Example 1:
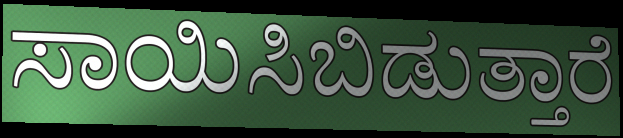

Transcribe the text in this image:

ಸಾಯಿಸಿಬಿಡುತ್ತಾರೆ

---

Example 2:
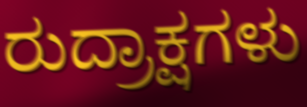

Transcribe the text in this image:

ರುದ್ರಾಕ್ಷಗಳು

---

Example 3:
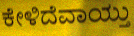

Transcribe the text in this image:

ಕೇಳಿದೆವಾಯ್ತು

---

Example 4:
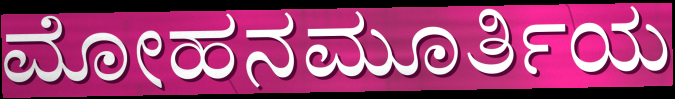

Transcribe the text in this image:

ಮೋಹನಮೂರ್ತಿಯ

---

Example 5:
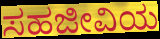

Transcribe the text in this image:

ಸಹಜೀವಿಯ